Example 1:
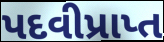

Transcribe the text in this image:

પદવીપ્રાપ્ત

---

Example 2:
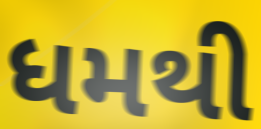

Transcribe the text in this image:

ધમથી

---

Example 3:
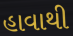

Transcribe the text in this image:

હાવાથી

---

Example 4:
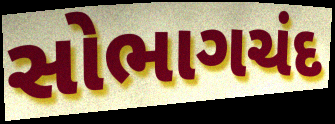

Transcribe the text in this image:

સોભાગચંદ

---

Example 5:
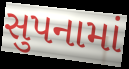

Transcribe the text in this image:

સુપનામાં